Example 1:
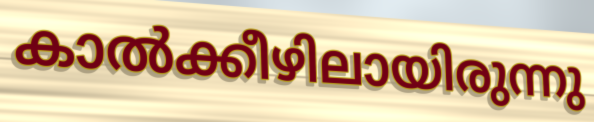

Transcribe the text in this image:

കാൽക്കീഴിലായിരുന്നു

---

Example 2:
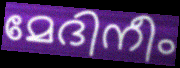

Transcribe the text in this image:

മേദിനീം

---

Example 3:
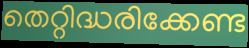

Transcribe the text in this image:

തെറ്റിദ്ധരിക്കേണ്ട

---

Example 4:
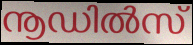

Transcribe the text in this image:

നൂഡിൽസ്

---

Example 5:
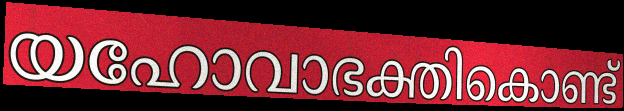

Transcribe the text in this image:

യഹോവാഭക്തികൊണ്ട്